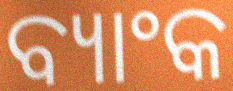
ବ୍ୟାଂକ